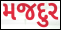
મજદુર